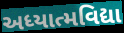
અધ્યાત્મવિદ્યા